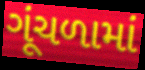
ગૂંચળામાં